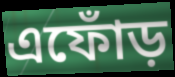
এফোঁড়